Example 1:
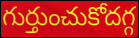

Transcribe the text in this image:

గుర్తుంచుకోదగ్గ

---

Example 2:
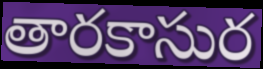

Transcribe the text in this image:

తారకాసుర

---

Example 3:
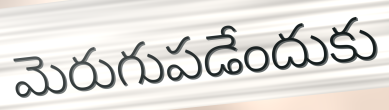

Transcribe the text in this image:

మెరుగుపడేందుకు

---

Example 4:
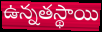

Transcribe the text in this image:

ఉన్నతస్థాయి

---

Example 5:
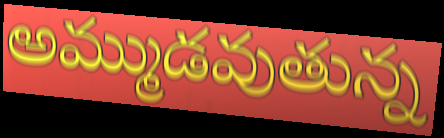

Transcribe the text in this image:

అమ్ముడవుతున్న